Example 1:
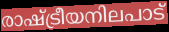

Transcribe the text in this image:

രാഷ്ട്രീയനിലപാട്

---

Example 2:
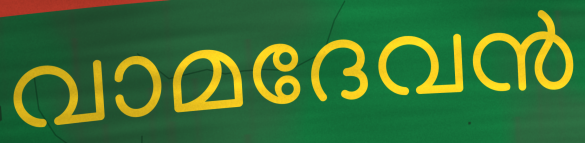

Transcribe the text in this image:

വാമദേവൻ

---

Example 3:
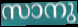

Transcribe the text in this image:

സാനു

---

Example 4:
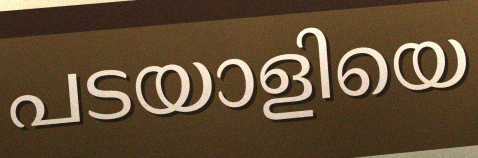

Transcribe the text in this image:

പടയാളിയെ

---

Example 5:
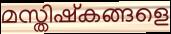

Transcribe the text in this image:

മസ്തിഷ്കങ്ങളെ